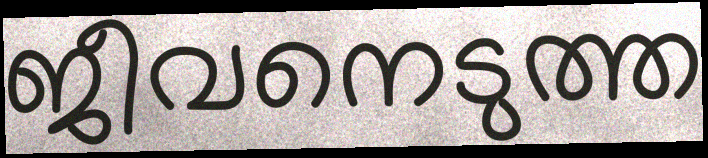
ജീവനെടുത്ത